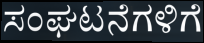
ಸಂಘಟನೆಗಳಿಗೆ